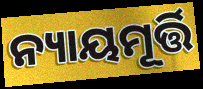
ନ୍ୟାୟମୂର୍ତ୍ତି